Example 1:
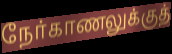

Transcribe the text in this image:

நேர்காணலுக்குத்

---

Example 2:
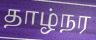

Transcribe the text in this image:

தாழ்நர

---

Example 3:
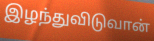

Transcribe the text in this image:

இழந்துவிடுவான்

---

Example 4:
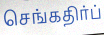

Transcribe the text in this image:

செங்கதிர்ப்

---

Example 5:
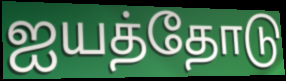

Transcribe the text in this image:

ஐயத்தோடு